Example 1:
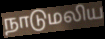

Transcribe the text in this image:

நாடுமலிய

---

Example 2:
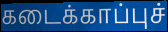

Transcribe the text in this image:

கடைக்காப்புச்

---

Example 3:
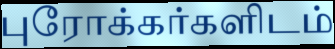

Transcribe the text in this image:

புரோக்கர்களிடம்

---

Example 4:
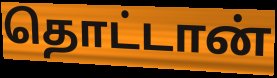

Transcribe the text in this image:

தொட்டான்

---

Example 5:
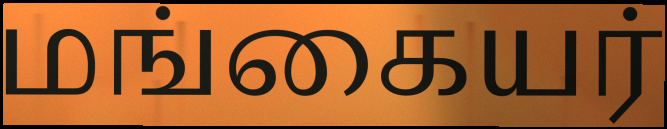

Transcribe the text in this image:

மங்கையர்